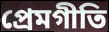
প্রেমগীতি